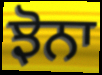
ਝੋਨਾ